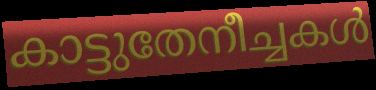
കാട്ടുതേനീച്ചകൾ